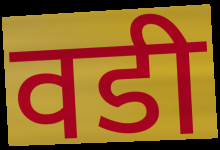
वडी